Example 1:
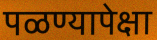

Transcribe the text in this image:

पळण्यापेक्षा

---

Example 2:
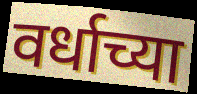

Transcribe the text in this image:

वर्धाच्या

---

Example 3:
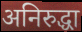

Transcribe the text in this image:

अनिरुद्धा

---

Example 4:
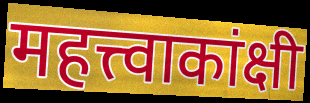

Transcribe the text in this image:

महत्त्वाकांक्षी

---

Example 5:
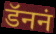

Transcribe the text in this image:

डॅननं